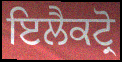
ਇਲੈਕਟ੍ਰੋ